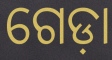
ଗେଡ଼ା